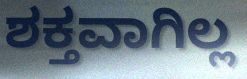
ಶಕ್ತವಾಗಿಲ್ಲ